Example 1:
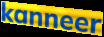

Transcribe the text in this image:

kanneer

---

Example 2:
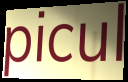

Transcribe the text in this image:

picul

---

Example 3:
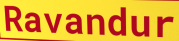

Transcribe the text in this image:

Ravandur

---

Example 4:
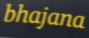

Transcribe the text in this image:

bhajana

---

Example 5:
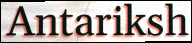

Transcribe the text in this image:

Antariksh